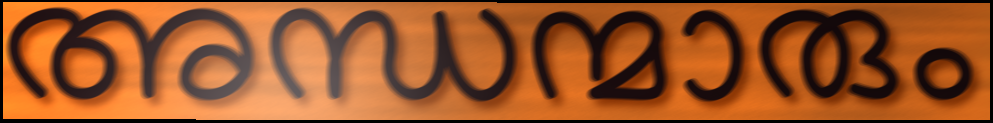
അന്ധന്മാരും